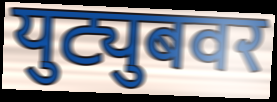
युट्युबवर